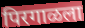
पिरगाळला